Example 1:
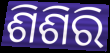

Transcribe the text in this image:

ଶିଶିରି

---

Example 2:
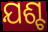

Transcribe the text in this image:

ଯଶ୍ଚ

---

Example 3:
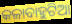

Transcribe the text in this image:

କଳାବାହୁଟିଆ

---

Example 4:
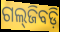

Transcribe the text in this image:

ଗଲ୍‌ଜିବଡ଼ି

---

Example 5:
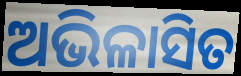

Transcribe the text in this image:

ଅଭିଳାସିତ